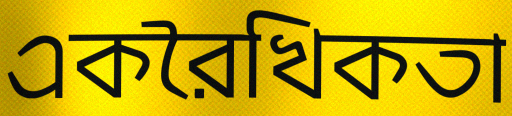
একরৈখিকতা